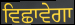
ਵਿਛਾਵੇਗਾ